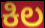
ಕಿಲ